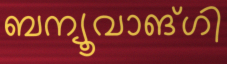
ബന്യൂവാങ്ഗി